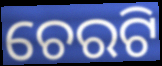
ଚେରଟି